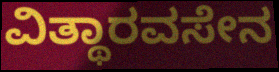
ವಿತ್ಥಾರವಸೇನ